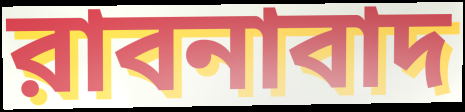
রাবনাবাদ